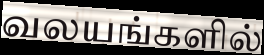
வலயங்களில்